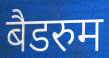
बैडरुम